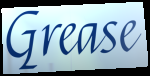
Grease